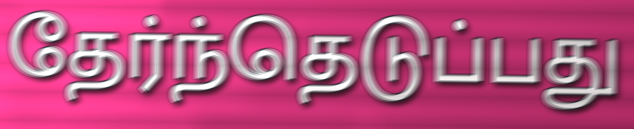
தேர்ந்தெடுப்பது